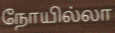
நோயில்லா